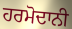
ਹਰਮੋਦਾਨੀ